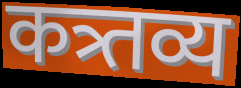
कत्र्तव्य